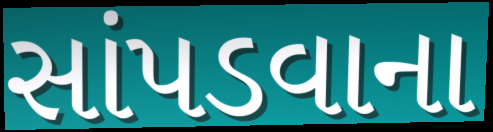
સાંપડવાના